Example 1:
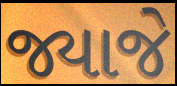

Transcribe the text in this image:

જ્યાજે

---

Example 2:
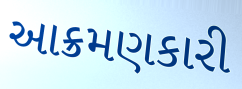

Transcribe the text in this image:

આક્રમણકારી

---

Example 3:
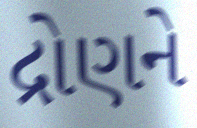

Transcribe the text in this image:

દ્રોણને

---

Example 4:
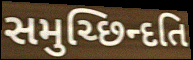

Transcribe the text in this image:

સમુચ્છિન્દતિ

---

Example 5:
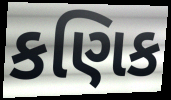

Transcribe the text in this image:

કણિક